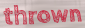
thrown